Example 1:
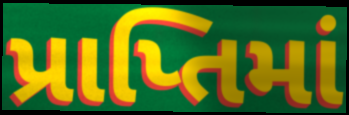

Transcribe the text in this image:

પ્રાપ્તિમાં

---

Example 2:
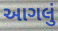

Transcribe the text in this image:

આગલું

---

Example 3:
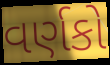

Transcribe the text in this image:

વર્ણકો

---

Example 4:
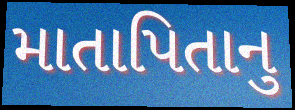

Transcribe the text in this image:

માતાપિતાનુ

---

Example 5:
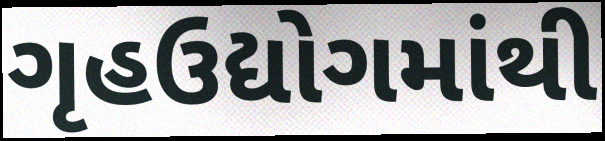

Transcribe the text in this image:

ગૃહઉદ્યોગમાંથી